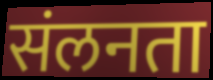
संलनता